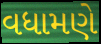
વધામણે